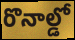
రొనాల్డో